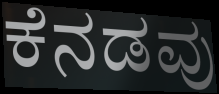
ಕೆನಡವು